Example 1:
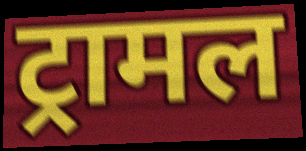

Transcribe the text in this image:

ट्रामल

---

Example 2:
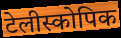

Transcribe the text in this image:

टेलीस्कोपिक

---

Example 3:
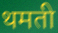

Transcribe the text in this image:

थमती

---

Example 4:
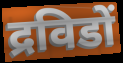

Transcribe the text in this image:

द्रविडों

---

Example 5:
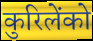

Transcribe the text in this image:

कुरिलेंको